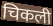
चिकली